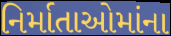
નિર્માતાઓમાંના